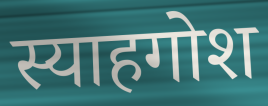
स्याहगोश